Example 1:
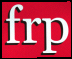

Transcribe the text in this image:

frp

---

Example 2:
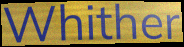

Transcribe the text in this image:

Whither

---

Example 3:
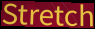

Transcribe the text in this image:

Stretch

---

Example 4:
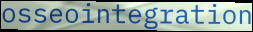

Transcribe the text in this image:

osseointegration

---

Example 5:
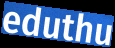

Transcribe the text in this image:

eduthu